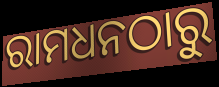
ରାମଧନଠାରୁ